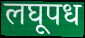
लघूपध